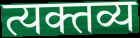
त्यक्तव्य